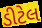
ડીટેલ